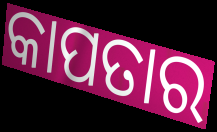
କାପତାର